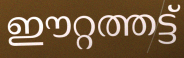
ഈറ്റത്തട്ട്